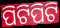
ପିଟିପିଟି